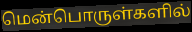
மென்பொருள்களில்